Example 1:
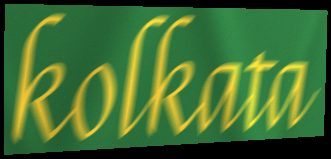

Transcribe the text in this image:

kolkata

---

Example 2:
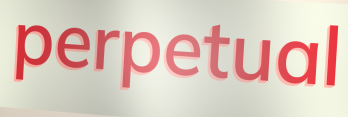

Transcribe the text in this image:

perpetual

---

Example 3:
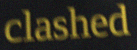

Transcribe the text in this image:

clashed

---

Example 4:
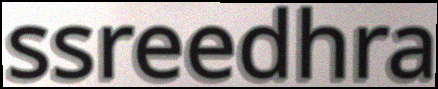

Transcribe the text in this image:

ssreedhra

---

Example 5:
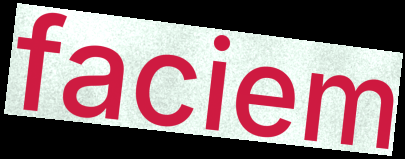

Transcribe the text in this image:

faciem